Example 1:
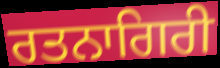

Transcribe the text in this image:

ਰਤਨਾਗਿਰੀ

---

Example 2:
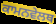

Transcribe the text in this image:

ਕਾਮਨਵੇਲਥ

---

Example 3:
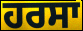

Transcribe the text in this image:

ਹਰਸਾ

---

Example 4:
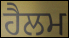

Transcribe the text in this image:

ਹੈਲਮ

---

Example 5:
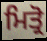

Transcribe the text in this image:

ਮਿਤ੍ਰੋ